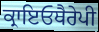
ਕ੍ਰਾਇਓਥੈਰੇਪੀ